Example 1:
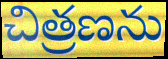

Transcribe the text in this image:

చిత్రణను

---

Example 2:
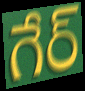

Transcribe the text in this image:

గేర్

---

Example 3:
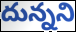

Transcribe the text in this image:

దున్నని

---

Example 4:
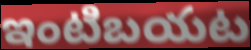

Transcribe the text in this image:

ఇంటిబయట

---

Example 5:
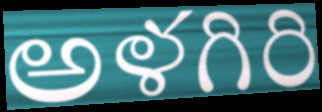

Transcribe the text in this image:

అళగిరి